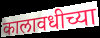
कालावधीच्या